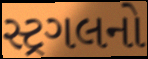
સ્ટ્રગલનો